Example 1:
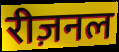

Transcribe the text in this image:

रीज़नल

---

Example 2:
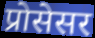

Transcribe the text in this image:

प्रोसेसर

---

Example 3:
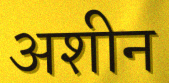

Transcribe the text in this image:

अशीन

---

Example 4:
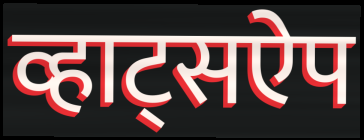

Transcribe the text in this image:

व्‍हाट्सऐप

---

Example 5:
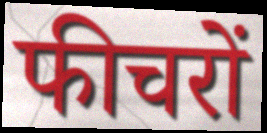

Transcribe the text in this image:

फीचरों